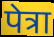
पेत्रा